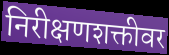
निरीक्षणशक्तीवर